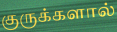
குருக்களால்